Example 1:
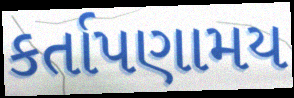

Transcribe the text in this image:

કર્તાપણામય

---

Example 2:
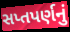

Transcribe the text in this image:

સપ્તપર્ણનું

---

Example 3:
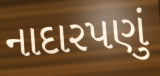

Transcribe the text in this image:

નાદારપણું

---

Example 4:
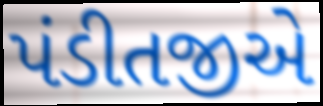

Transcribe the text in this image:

પંડીતજીએ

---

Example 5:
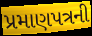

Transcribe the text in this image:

પ્રમાણપત્રની